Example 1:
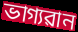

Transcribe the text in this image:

ভাগ্যৱান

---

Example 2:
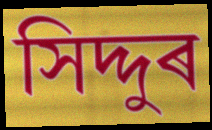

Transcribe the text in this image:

সিদ্দুৰ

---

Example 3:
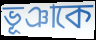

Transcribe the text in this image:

ভূঞাকে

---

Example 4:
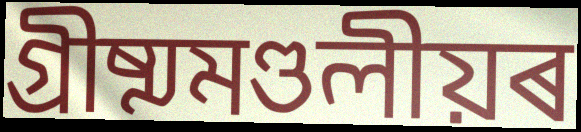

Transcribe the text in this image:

গ্ৰীষ্মমণ্ডলীয়ৰ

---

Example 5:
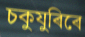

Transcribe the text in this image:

চকুযুৰিৰে